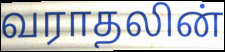
வராதலின்